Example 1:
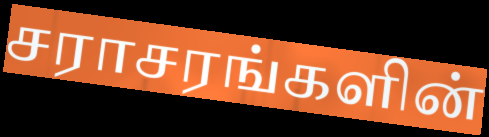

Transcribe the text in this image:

சராசரங்களின்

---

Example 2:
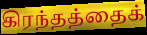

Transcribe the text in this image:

கிரந்தத்தைக்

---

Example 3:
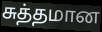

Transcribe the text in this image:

சுத்தமான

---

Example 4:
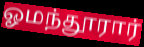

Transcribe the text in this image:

ஓமந்தூரார்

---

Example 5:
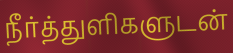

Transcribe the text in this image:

நீர்த்துளிகளுடன்